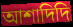
আশাদিদি